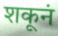
शकूनं